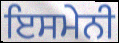
ਇਸਮੇਨੀ